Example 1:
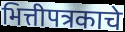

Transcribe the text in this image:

भित्तीपत्रकाचे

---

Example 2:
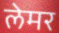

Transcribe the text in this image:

लेमर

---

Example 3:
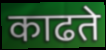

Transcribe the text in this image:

काढते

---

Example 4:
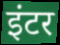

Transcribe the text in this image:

इंटर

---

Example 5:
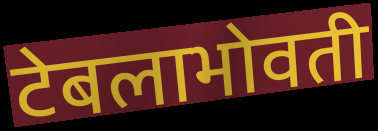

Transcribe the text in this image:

टेबलाभोवती